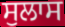
ਸੁਲਾਸ